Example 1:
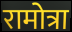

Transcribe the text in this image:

रामोत्रा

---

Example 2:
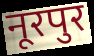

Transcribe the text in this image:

नूरपुर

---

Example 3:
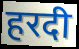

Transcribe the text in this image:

हरदी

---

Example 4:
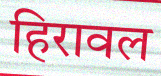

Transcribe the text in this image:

हिरावल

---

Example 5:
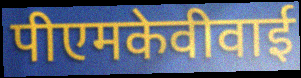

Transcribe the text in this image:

पीएमकेवीवाई